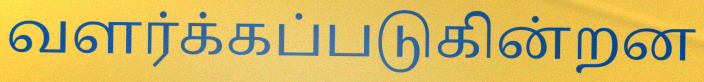
வளர்க்கப்படுகின்றன